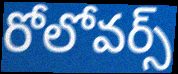
రోలోవర్స్